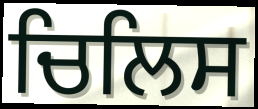
ਚਿਲਿਸ